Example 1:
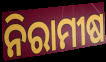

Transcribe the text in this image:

ନିରାମୀଷ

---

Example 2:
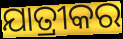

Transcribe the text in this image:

ଯାତ୍ରୀକର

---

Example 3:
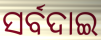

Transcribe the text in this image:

ସର୍ବଦାଇ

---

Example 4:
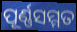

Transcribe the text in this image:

ପୂର୍ଣ୍ଣସମ୍ମତ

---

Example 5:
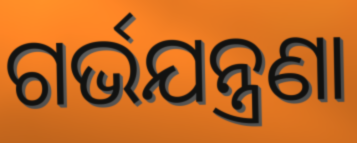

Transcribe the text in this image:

ଗର୍ଭଯନ୍ତ୍ରଣା